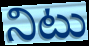
నిటు